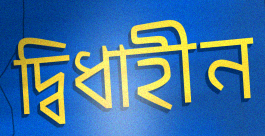
দ্বিধাহীন